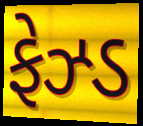
ફેઝ્ડ